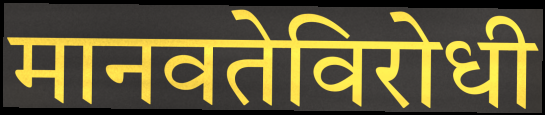
मानवतेविरोधी